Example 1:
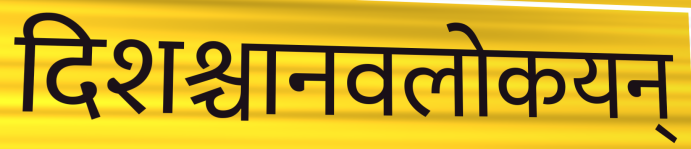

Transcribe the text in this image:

दिशश्चानवलोकयन्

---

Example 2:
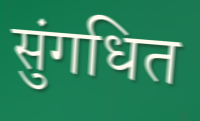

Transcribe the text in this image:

सुंगधित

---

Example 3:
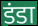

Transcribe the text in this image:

डंडा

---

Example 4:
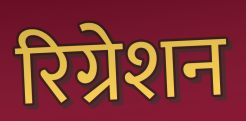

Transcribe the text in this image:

रिग्रेशन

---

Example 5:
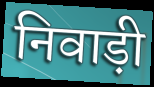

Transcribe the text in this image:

निवाड़ी